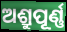
ଅଶ୍ରୁପୂର୍ଣ୍ଣ